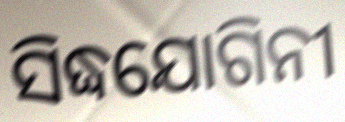
ସିଦ୍ଧଯୋଗିନୀ